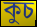
কুচ